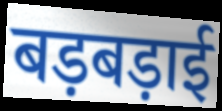
बड़बड़ाई